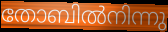
തോബിൽനിന്നു